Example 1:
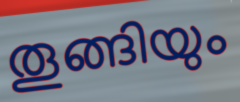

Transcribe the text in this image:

തൂങ്ങിയും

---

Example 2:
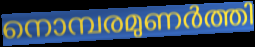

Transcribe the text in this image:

നൊമ്പരമുണർത്തി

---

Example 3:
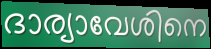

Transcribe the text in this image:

ദാര്യാവേശിനെ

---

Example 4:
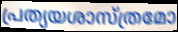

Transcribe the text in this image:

പ്രത്യയശാസ്ത്രമോ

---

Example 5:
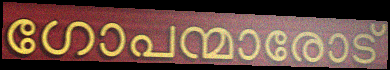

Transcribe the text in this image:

ഗോപന്മാരോട്